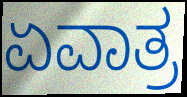
ಏವಾತ್ರ